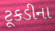
ટૂકડીના